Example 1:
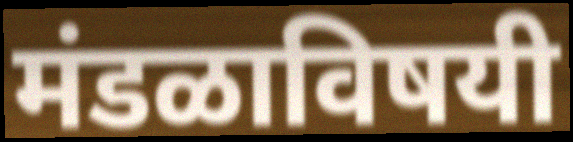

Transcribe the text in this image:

मंडळाविषयी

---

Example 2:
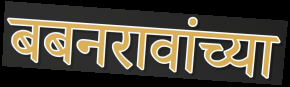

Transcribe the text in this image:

बबनरावांच्या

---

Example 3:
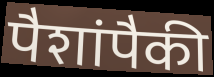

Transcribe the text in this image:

पैशांपैकी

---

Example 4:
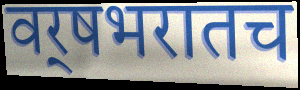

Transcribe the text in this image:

वर्षभरातच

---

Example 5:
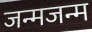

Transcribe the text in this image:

जन्मजन्म